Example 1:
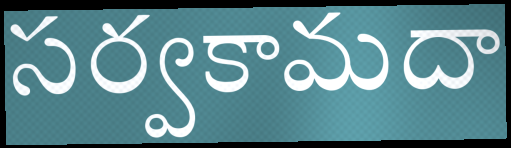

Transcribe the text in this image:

సర్వకామదా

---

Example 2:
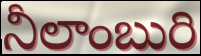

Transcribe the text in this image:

నీలాంబురి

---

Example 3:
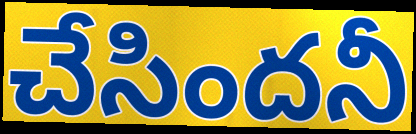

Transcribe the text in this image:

చేసిందనీ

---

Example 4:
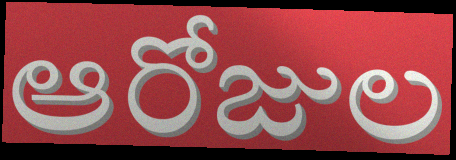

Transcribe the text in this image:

ఆరోజుల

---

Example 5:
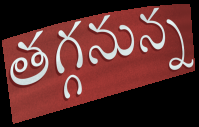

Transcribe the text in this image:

తగ్గనున్న